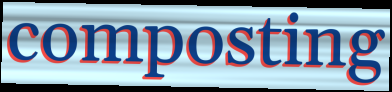
composting